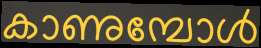
കാണുമ്പോൾ